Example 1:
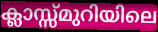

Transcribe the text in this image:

ക്ലാസ്സ്മുറിയിലെ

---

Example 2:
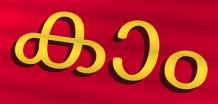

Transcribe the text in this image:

കാം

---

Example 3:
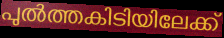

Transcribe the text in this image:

പുൽത്തകിടിയിലേക്ക്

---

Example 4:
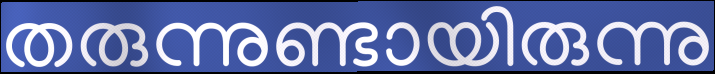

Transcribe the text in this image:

തരുന്നുണ്ടായിരുന്നു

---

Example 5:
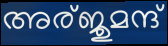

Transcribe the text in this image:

അര്ജുമന്ദ്